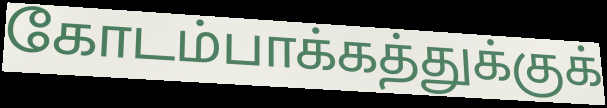
கோடம்பாக்கத்துக்குக்